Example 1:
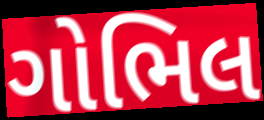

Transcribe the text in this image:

ગોભિલ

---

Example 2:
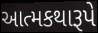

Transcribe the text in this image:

આત્મકથારૂપે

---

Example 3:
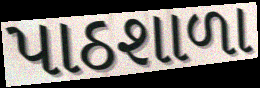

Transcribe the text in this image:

પાઠશાળા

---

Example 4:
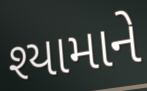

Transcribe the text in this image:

શ્યામાને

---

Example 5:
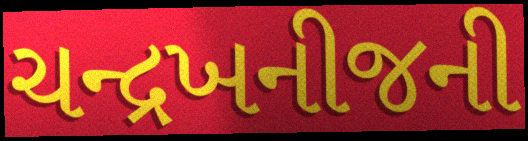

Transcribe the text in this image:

ચન્દ્રખનીજની